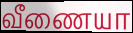
வீணையா